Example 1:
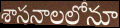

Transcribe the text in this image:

శాసనాలలోనూ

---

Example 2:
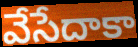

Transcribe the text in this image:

వేసేదాకా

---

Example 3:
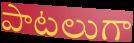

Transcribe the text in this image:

పాటలుగా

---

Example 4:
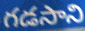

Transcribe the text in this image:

గడసాని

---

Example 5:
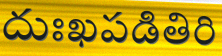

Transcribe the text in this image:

దుఃఖపడితిరి